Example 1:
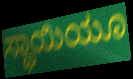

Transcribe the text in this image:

ಸ್ಥಾಯಿಯೂ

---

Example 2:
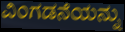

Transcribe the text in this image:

ವಿಂಗಡನೆಯನ್ನು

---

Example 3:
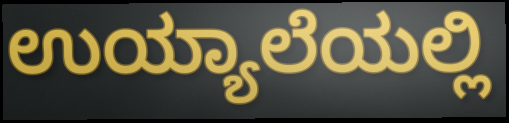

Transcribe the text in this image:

ಉಯ್ಯಾಲೆಯಲ್ಲಿ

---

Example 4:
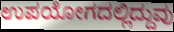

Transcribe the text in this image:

ಉಪಯೋಗದಲ್ಲಿದ್ದುವು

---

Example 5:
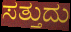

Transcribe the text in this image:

ಸತ್ತುದು